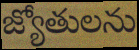
జ్యోతులను